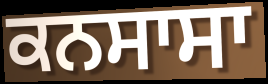
ਕਨਸਾਸਾ